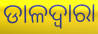
ଡାଳଦ୍ୱାରା